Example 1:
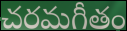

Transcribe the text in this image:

చరమగీతం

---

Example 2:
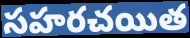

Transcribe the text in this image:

సహరచయిత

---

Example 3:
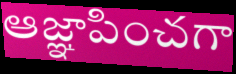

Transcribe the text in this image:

ఆజ్ఞాపించగా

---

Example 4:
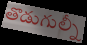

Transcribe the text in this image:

తొడుగుల్నీ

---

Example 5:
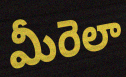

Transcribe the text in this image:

మీరెలా